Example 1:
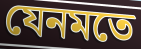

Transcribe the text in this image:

যেনমতে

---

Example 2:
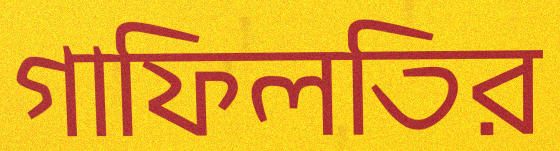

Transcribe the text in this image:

গাফিলতির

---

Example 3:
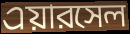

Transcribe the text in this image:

এয়ারসেল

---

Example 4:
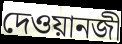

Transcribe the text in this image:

দেওয়ানজী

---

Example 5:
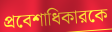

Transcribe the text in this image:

প্রবেশাধিকারকে